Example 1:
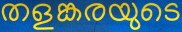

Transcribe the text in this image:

തളങ്കരയുടെ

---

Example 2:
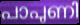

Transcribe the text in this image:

പാപുണി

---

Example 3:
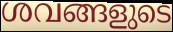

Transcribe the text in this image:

ശവങ്ങളുടെ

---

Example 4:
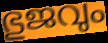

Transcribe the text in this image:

ഭുജവും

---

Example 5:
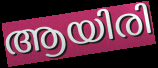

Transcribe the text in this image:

ആയിരി